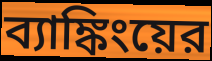
ব্যাঙ্কিংয়ের